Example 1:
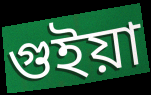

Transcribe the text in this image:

গুইয়া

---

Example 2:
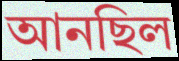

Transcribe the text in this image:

আনছিল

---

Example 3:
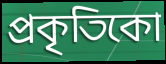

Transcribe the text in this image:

প্ৰকৃতিকো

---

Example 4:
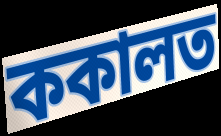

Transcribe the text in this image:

ককালত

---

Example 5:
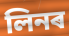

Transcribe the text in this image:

লিনৰ